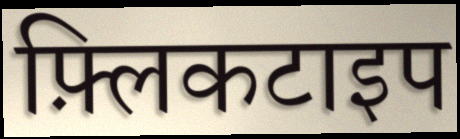
फ़्लिकटाइप